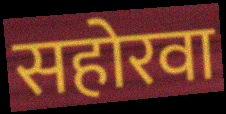
सहोरवा